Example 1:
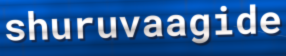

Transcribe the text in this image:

shuruvaagide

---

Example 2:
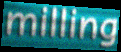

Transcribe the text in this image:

milling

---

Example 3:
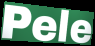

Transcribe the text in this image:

Pele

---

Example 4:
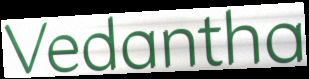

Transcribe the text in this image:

Vedantha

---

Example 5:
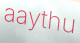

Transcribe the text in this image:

aaythu